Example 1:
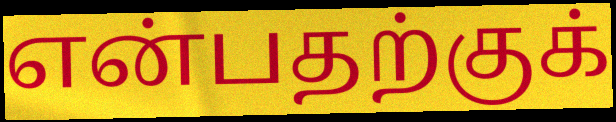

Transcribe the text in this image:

என்பதற்குக்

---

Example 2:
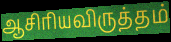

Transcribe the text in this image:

ஆசிரியவிருத்தம்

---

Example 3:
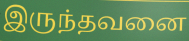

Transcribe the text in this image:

இருந்தவனை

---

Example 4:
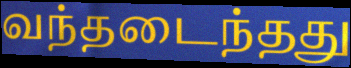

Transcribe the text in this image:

வந்தடைந்தது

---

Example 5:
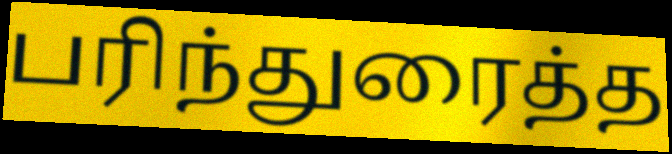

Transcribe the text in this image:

பரிந்துரைத்த